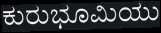
ಕುರುಭೂಮಿಯು